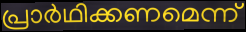
പ്രാർഥിക്കണമെന്ന്